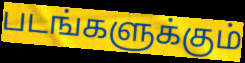
படங்களுக்கும்